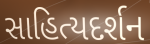
સાહિત્યદર્શન